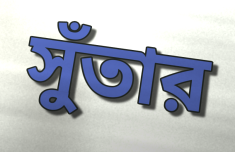
সুঁতার